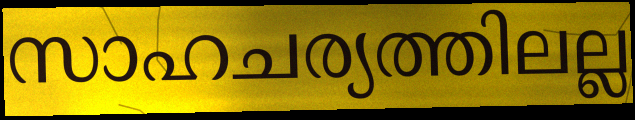
സാഹചര്യത്തിലല്ല